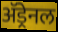
ॲड्रेनल